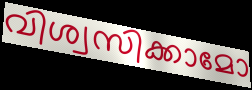
വിശ്വസിക്കാമോ